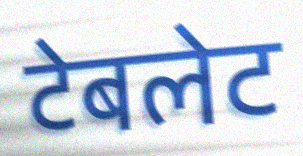
टेबलेट